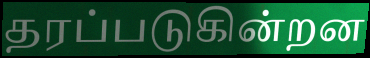
தரப்படுகின்றன